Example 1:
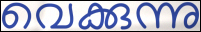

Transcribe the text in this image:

വെക്കുന്നു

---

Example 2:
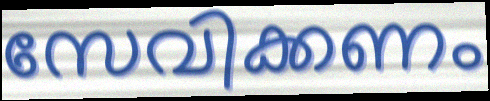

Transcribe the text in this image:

സേവിക്കണം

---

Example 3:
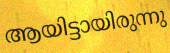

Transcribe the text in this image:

ആയിട്ടായിരുന്നു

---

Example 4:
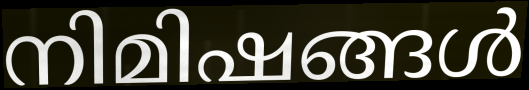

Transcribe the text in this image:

നിമിഷങ്ങൾ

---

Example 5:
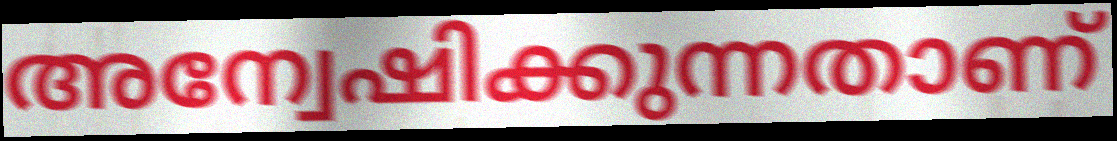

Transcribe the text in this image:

അന്വേഷിക്കുന്നതാണ്